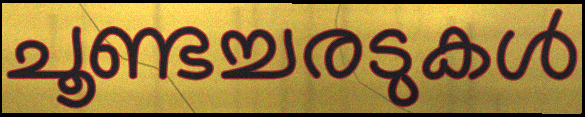
ചൂണ്ടച്ചരടുകൾ